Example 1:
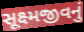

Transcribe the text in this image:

સૂક્ષ્મજીવનું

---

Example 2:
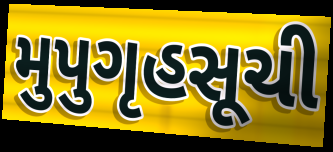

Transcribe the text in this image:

મુપુગૃહસૂચી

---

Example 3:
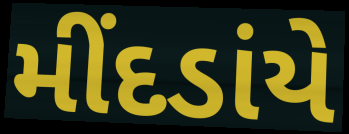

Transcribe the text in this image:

મીંદડાંયે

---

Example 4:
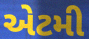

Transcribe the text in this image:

એટમી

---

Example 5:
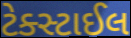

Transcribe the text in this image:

ટેક્સ્ટાઈલ